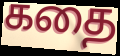
கதை